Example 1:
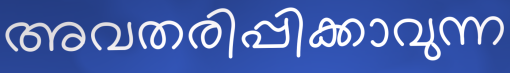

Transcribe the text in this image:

അവതരിപ്പിക്കാവുന്ന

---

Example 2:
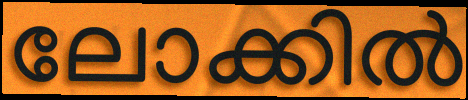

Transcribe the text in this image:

ലോക്കിൽ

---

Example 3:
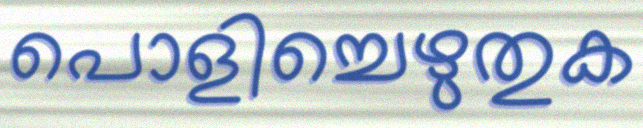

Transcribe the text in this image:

പൊളിച്ചെഴുതുക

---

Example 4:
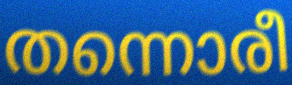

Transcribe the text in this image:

തന്നൊരീ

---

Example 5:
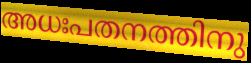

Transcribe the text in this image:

അധഃപതനത്തിനു